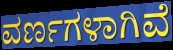
ವರ್ಣಗಳಾಗಿವೆ